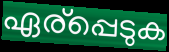
ഏര്പ്പെടുക